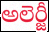
అలెర్జీ